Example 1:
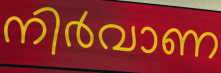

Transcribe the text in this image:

നിർവാണ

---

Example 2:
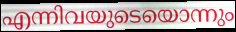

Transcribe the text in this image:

എന്നിവയുടെയൊന്നും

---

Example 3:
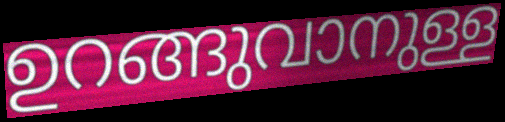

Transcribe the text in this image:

ഉറങ്ങുവാനുള്ള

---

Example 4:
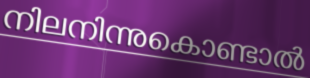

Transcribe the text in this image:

നിലനിന്നുകൊണ്ടാൽ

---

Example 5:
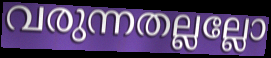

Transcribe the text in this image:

വരുന്നതല്ലല്ലോ